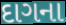
દાગના